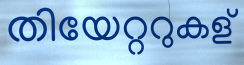
തിയേറ്ററുകള്